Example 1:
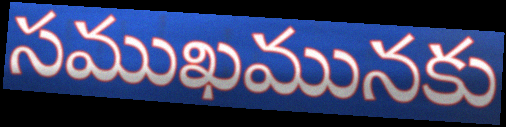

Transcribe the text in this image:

సముఖమునకు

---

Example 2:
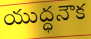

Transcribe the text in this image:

యుద్ధనౌక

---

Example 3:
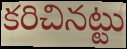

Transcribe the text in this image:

కరిచినట్టు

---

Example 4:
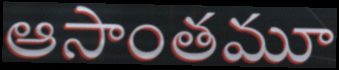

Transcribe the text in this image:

ఆసాంతమూ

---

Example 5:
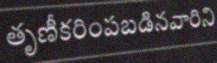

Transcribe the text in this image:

తృణీకరింపబడినవారిని